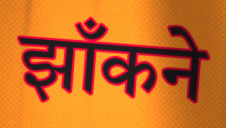
झाँकने